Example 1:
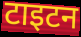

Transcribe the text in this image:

टाइटन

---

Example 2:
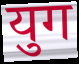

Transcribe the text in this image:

युग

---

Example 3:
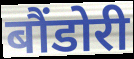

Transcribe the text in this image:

बौंडोरी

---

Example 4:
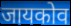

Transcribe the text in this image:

जायकोव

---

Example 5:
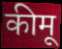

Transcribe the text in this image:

कीमू